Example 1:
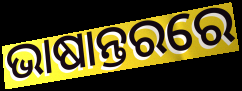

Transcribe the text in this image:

ଭାଷାନ୍ତରରେ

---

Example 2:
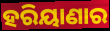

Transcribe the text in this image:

ହରିୟାଣାର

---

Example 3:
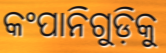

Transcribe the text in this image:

କଂପାନିଗୁଡ଼ିକୁ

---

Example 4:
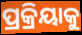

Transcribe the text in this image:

ପ୍ରକ୍ରିୟାକୁ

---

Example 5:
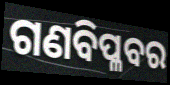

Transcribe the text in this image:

ଗଣବିପ୍ଳବର